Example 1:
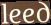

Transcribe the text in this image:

leed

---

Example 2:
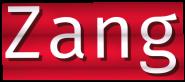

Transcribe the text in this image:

Zang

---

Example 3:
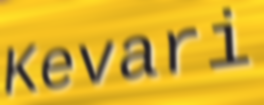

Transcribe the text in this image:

Kevari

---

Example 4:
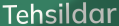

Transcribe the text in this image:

Tehsildar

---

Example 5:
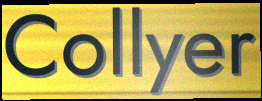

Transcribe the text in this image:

Collyer